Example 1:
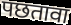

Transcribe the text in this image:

पछतावा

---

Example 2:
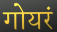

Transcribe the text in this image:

गोयरं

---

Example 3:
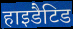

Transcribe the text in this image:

हाइडैटिड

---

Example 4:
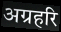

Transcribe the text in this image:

अग्रहरि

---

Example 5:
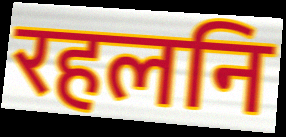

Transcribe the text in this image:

रहलनि